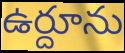
ఉర్దూను